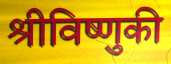
श्रीविष्णुकी